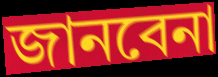
জানবেনা